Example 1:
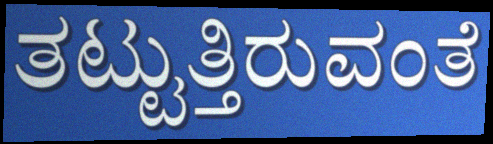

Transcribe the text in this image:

ತಟ್ಟುತ್ತಿರುವಂತೆ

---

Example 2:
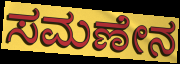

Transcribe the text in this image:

ಸಮಣೇನ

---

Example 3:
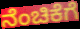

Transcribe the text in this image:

ನೆಂಚಿಕೆಗೆ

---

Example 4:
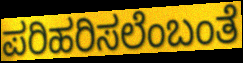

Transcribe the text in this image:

ಪರಿಹರಿಸಲೆಂಬಂತೆ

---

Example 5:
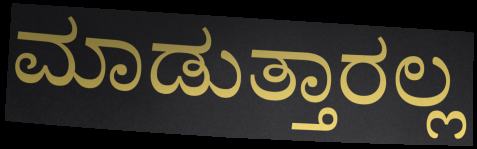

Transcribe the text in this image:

ಮಾಡುತ್ತಾರಲ್ಲ